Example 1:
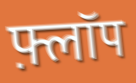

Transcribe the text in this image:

फ़्लॉप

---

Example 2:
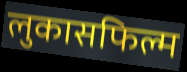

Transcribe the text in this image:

लुकासफिल्म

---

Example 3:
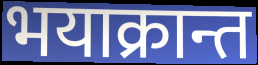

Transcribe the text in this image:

भयाक्रान्त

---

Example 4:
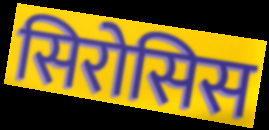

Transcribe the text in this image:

सिरोसिस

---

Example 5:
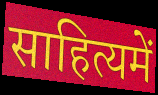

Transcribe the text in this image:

साहित्यमें